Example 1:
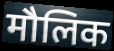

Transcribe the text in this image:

मौलिक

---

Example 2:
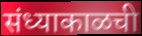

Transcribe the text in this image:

संध्याकाळची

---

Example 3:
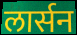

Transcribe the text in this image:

लार्सन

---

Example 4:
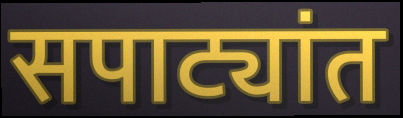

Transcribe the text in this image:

सपाट्यांत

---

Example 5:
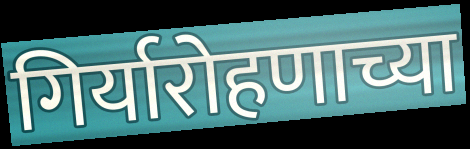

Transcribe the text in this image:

गिर्यारोहणाच्या